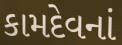
કામદેવનાં